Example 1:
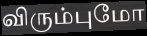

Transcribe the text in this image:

விரும்புமோ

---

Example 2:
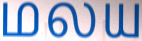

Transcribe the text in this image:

மலய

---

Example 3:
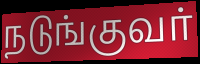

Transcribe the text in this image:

நடுங்குவர்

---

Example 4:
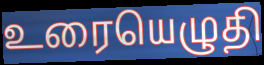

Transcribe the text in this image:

உரையெழுதி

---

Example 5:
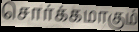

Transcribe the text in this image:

சொர்க்கமாகும்